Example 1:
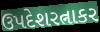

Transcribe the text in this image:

ઉપદેશરત્નાકર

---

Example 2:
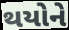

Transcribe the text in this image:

થયોને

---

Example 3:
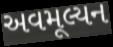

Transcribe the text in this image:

અવમૂલ્યન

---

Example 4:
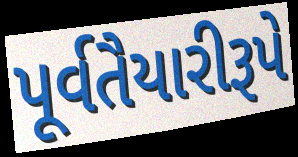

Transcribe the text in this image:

પૂર્વતૈયારીરૂપે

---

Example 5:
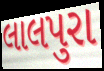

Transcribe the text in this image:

લાલપુરા